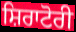
ਸ਼ਿਰਾਟੋਰੀ